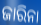
ଜାରିନା